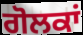
ਗੋਲਕਾਂ